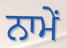
ਨਾਮੇਂ